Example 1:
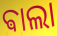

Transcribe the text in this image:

ଵାଲା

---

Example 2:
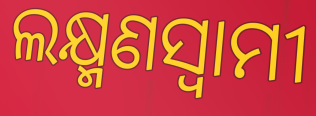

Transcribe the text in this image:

ଲକ୍ଷ୍ମଣସ୍ଵାମୀ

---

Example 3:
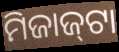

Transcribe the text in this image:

ମିଜାଜ୍‌ଟା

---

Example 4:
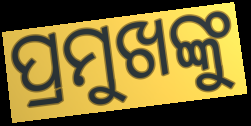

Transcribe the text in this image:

ପ୍ରମୁଖଙ୍କୁ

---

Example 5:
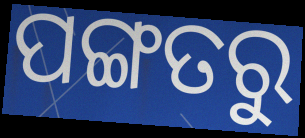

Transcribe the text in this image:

ପଙ୍ଗତରୁ